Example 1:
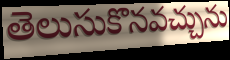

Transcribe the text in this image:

తెలుసుకొనవచ్చును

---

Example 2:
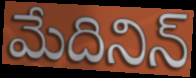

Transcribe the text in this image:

మేదినిన్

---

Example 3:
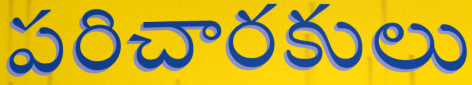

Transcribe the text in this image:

పరిచారకులు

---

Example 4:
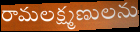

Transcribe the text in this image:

రామలక్ష్మణులను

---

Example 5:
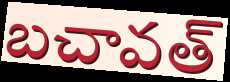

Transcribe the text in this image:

బచావత్